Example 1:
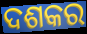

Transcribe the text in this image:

ଦଶକର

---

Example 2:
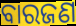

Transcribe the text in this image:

ବାରଜଣ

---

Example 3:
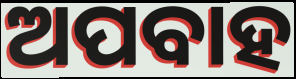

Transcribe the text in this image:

ଅପବାହ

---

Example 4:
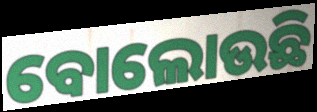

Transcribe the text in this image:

ବୋଲୋଉଛି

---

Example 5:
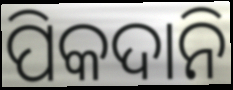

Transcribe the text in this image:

ପିକଦାନି